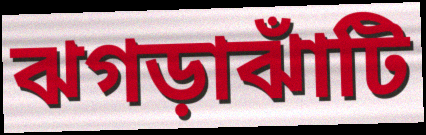
ঝগড়াঝাঁটি